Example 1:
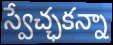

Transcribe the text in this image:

స్వేచ్ఛకన్నా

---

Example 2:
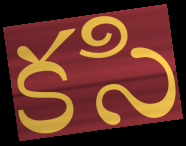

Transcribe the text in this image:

కసి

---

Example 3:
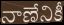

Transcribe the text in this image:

నాణేనికీ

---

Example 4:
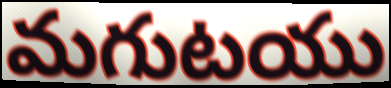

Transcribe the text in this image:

మగుటయు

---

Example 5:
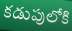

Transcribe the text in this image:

కడుపులోకి